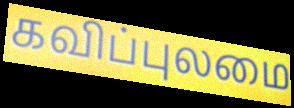
கவிப்புலமை